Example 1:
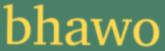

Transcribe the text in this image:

bhawo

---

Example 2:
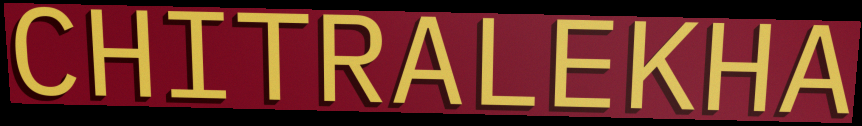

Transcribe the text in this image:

CHITRALEKHA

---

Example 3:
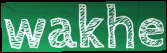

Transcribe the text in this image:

wakhe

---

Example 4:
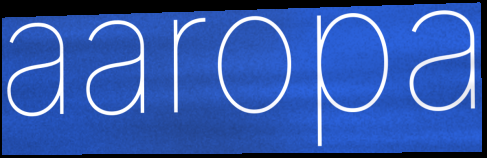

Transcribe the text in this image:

aaropa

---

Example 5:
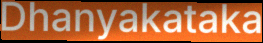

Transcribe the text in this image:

Dhanyakataka